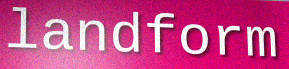
landform